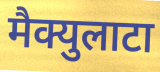
मैक्युलाटा